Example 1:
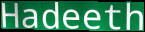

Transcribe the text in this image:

Hadeeth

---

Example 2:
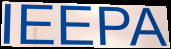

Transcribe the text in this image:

IEEPA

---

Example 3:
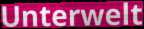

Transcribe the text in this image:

Unterwelt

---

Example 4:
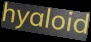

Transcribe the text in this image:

hyaloid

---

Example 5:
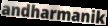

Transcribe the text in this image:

andharmanik